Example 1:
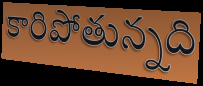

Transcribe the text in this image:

కారిపోతున్నది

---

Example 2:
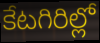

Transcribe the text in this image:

కేటగిరిల్లో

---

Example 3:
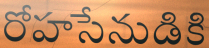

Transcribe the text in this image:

రోహసేనుడికి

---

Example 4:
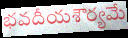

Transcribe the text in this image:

భవదీయశౌర్యమే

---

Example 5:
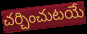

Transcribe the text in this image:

చర్చించుటయే